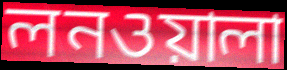
লনওয়ালা